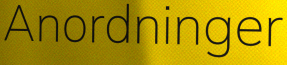
Anordninger